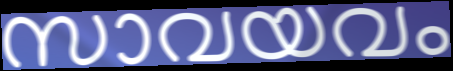
സാവയവം